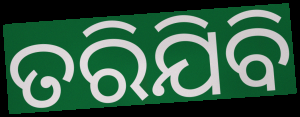
ତରିଯିବି